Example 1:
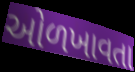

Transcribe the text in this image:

ઓળખાવતા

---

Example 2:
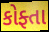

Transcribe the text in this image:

કોફ્તા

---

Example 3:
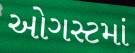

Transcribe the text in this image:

ઓગસ્ટમાં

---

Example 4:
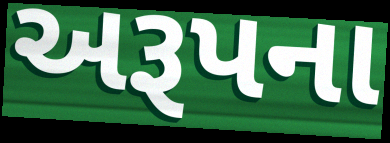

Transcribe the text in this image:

અરૂપના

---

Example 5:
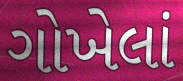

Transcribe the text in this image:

ગોખેલાં